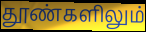
தூண்களிலும்